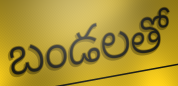
బండలతో